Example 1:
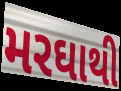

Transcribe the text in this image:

મરઘાથી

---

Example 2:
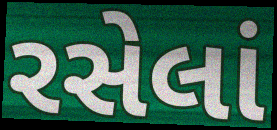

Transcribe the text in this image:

રસેલાં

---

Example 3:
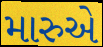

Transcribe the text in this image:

મારુએ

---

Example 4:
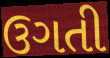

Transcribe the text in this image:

ઉગતી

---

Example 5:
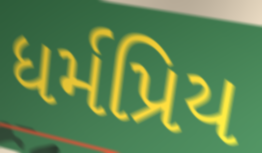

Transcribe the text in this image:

ધર્મપ્રિય